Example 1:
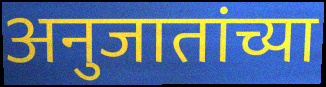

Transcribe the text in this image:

अनुजातांच्या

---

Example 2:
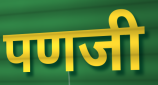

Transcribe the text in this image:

पणजी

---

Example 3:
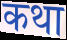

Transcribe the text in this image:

कथा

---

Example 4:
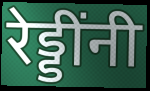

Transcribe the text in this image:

रेड्डींनी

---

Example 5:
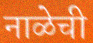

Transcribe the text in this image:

नाळेची